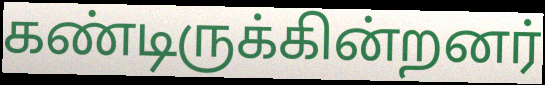
கண்டிருக்கின்றனர்